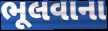
ભૂલવાના